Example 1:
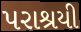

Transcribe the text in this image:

પરાશ્રયી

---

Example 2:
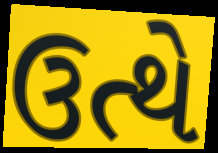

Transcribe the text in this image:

ઉત્થે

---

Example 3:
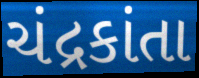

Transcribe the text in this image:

ચંદ્રકાંતા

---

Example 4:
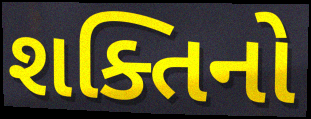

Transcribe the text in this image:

શક્તિનો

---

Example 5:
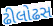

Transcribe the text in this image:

ઢીલોઢસ